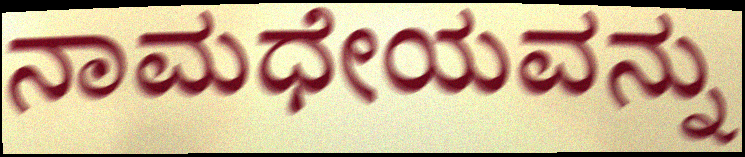
ನಾಮಧೇಯವನ್ನು